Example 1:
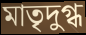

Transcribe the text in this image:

মাতৃদুগ্ধ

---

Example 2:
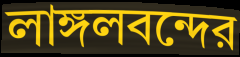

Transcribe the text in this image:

লাঙ্গলবন্দের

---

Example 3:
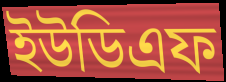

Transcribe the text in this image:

ইউডিএফ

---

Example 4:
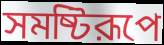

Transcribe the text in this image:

সমষ্টিরূপে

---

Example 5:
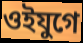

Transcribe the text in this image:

ওইযুগে